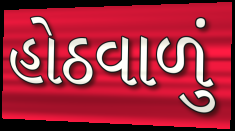
હોઠવાળું